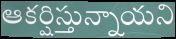
ఆకర్షిస్తున్నాయని